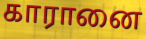
காரானை